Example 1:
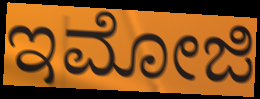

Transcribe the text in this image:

ಇಮೋಜಿ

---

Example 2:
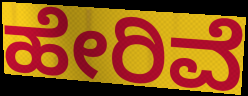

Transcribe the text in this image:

ಹೇರಿವೆ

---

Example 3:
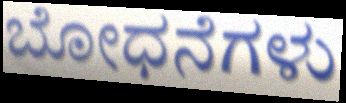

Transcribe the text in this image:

ಬೋಧನೆಗಳು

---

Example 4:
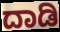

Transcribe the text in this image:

ದಾಡಿ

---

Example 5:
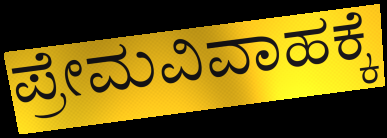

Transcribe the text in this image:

ಪ್ರೇಮವಿವಾಹಕ್ಕೆ